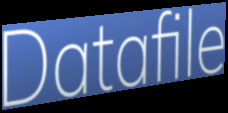
Datafile